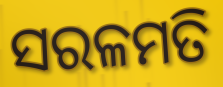
ସରଳମତି